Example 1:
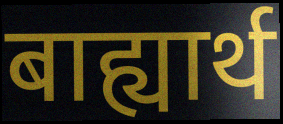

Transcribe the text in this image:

बाह्यार्थ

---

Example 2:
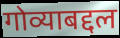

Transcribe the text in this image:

गोव्याबद्दल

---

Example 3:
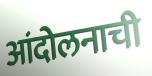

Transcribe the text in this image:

आंदोलनाची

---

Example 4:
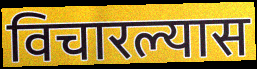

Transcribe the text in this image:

विचारल्यास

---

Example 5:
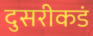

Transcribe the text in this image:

दुसरीकडं